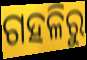
ଗହଳିରୁ